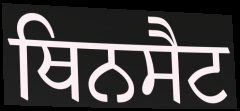
ਥਿਨਸੈਟ